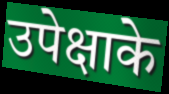
उपेक्षाके